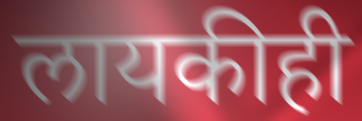
लायकीही